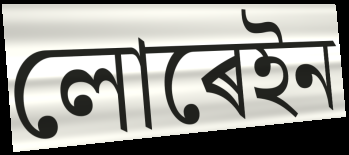
লোৰেইন